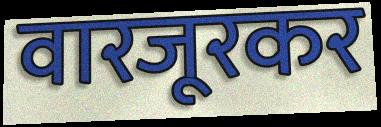
वारजूरकर